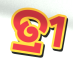
ତ୍ରୀ